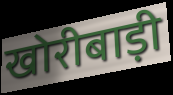
खोरीबाड़ी